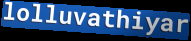
lolluvathiyar